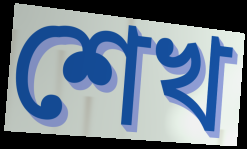
শেখ